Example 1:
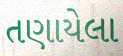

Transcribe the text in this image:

તણાયેલા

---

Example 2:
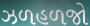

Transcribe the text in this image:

ઝળહળજો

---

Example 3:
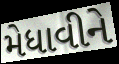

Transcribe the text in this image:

મેધાવીને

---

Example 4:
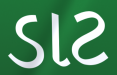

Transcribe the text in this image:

ડાટ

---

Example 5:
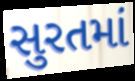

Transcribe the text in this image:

સુરતમાં